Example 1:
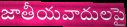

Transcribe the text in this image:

జాతీయవాదులపై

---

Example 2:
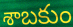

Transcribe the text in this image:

శాబకుం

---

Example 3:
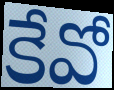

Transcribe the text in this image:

కేవో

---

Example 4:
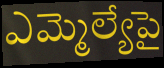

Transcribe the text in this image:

ఎమ్మెల్యేపై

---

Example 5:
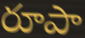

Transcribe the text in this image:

రూపా